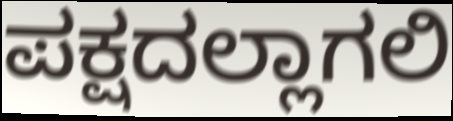
ಪಕ್ಷದಲ್ಲಾಗಲಿ